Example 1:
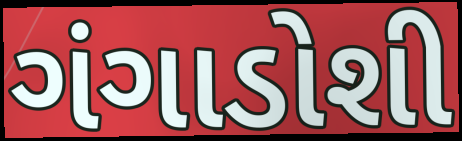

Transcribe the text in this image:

ગંગાડોશી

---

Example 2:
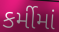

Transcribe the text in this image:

કર્મીમાં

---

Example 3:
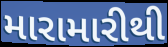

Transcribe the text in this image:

મારામારીથી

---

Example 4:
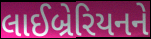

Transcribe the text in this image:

લાઈબ્રેરિયનને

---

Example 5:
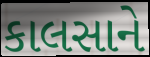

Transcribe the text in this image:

કાલસાને